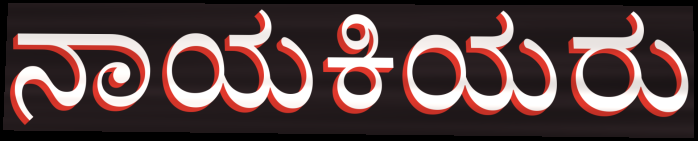
ನಾಯಕಿಯರು